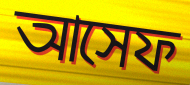
আসেফ